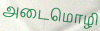
அடைமொழி